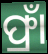
ଫ୍ରାଁ